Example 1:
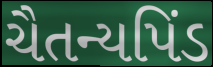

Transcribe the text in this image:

ચૈતન્યપિંડ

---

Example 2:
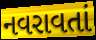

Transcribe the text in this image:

નવરાવતાં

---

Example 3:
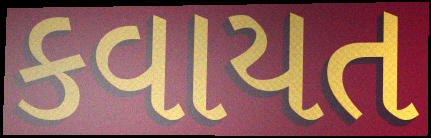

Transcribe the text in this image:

કવાયત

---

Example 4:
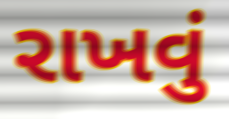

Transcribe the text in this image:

રાખવું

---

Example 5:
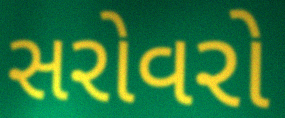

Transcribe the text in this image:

સરોવરો